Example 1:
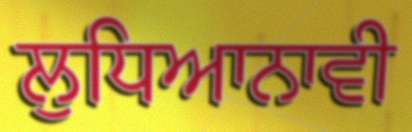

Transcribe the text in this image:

ਲੁਧਿਆਨਾਵੀ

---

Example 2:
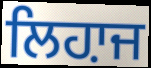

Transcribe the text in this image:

ਲਿਹ਼ਾਜ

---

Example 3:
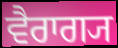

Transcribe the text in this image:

ਵੈਰਾਗ੍ਯ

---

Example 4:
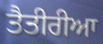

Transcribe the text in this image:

ਤੈਤੀਰੀਆ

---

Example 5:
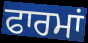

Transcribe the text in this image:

ਫਾਰਮਾਂ